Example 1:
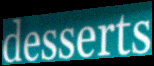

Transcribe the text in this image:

desserts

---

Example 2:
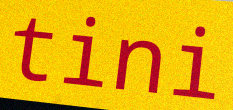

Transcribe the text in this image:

tini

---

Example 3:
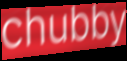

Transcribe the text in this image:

chubby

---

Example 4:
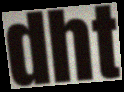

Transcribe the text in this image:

dht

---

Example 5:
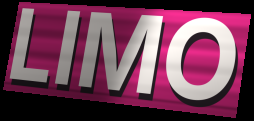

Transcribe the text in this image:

LIMO